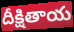
దీక్షితాయ